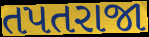
તપતરાજા